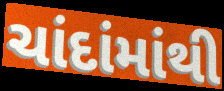
ચાંદાંમાંથી